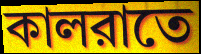
কালরাতে